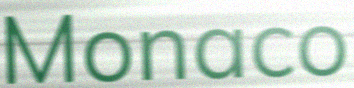
Monaco